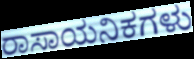
ರಾಸಾಯನಿಕಗಳು